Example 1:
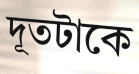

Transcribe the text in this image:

দূতটাকে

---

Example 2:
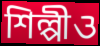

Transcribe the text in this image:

শিল্পীও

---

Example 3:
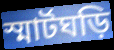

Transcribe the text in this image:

স্মার্টঘড়ি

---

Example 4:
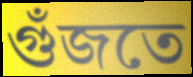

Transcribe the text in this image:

গুঁজতে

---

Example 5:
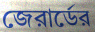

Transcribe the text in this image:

জেরার্ডের